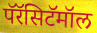
पॅरॅसिटॅमॉल